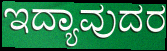
ಇದ್ಯಾವುದರ